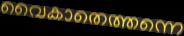
വൈകാതെത്തന്നെ